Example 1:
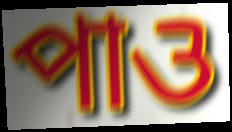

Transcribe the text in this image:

পাও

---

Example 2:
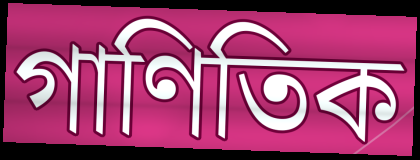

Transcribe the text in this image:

গাণিতিক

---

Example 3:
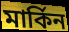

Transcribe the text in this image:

মাৰ্কিন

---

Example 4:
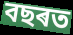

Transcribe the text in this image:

বছৰত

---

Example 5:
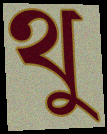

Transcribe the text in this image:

থু